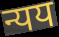
न्यय